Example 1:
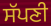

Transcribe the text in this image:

ਸੱਪਣੀ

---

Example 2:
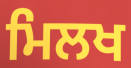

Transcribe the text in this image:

ਮਿਲਖ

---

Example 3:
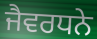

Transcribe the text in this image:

ਜੈਵਰਧਨੇ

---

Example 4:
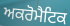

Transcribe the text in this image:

ਅਕਰੋਮੈਟਿਕ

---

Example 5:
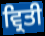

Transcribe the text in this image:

ਵ੍ਰਿਤੀ